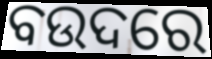
ବଉଦରେ